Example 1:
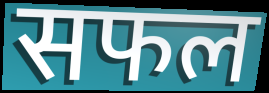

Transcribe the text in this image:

सफल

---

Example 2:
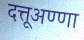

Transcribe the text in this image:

दत्तूअण्णा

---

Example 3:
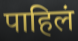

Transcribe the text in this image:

पाहिलं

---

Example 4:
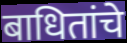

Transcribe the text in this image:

बाधितांचे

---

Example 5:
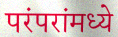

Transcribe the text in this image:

परंपरांमध्ये